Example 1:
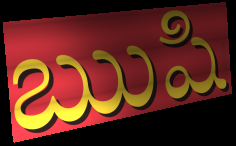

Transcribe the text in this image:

ఋషి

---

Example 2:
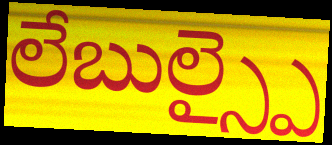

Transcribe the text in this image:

లేబుల్స్పై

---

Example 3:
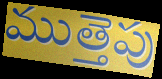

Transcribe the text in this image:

ముత్తెపు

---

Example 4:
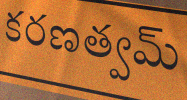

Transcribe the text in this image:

కరణత్వమ్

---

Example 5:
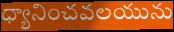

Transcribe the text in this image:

ధ్యానించవలయును